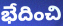
భేదించి